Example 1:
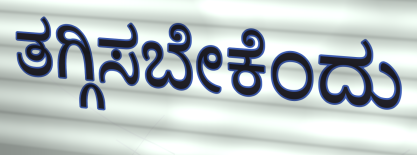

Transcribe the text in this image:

ತಗ್ಗಿಸಬೇಕೆಂದು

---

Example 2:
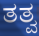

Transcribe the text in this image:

ತತ್ವ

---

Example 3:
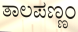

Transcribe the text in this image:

ತಾಲಪಣ್ಣಂ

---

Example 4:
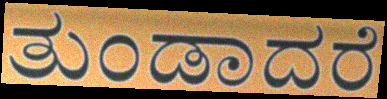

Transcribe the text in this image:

ತುಂಡಾದರೆ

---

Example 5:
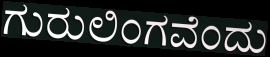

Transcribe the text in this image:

ಗುರುಲಿಂಗವೆಂದು